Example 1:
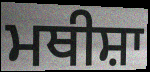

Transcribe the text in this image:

ਮਥੀਸ਼ਾ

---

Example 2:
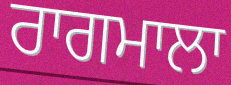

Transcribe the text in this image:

ਰਾਗਮਾਲਾ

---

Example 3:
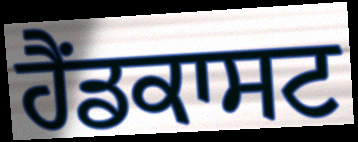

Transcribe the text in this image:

ਹੈਂਡਕਾਸਟ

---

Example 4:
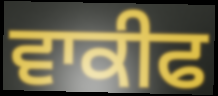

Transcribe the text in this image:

ਵਾਕੀਫ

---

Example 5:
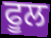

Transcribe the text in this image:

ਫੂਲ